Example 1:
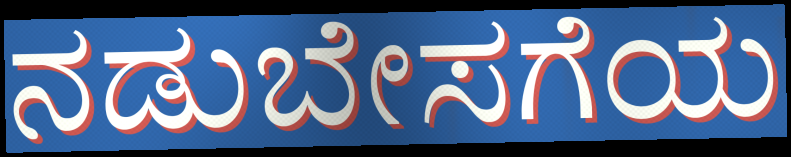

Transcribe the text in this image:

ನಡುಬೇಸಗೆಯ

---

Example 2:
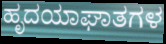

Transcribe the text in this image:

ಹೃದಯಾಘಾತಗಳ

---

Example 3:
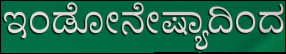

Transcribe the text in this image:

ಇಂಡೋನೇಷ್ಯಾದಿಂದ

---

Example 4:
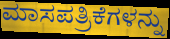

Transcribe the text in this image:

ಮಾಸಪತ್ರಿಕೆಗಳನ್ನು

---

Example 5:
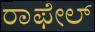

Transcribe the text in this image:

ರಾಫೇಲ್